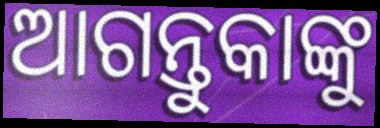
ଆଗନ୍ତୁକାଙ୍କୁ